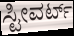
ಸ್ಟೀವರ್ಟ್